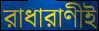
রাধারাণীই